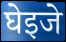
घेइजे